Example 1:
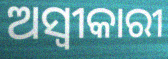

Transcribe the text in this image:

ଅସ୍ୱୀକାରୀ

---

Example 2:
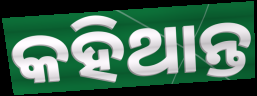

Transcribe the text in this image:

କହିଥାନ୍ତ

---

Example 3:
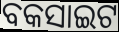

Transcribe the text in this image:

ବକସାଇଟ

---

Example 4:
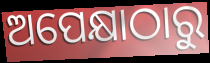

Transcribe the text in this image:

ଅପେକ୍ଷାଠାରୁ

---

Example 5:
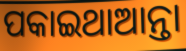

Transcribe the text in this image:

ପକାଇଥାଆନ୍ତା